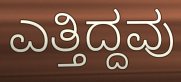
ಎತ್ತಿದ್ದವು